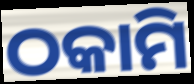
ଠକାମି